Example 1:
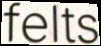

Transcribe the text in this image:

felts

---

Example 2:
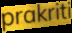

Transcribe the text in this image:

prakriti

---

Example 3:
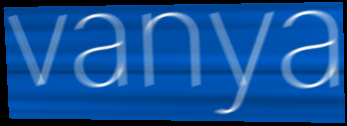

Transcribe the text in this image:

vanya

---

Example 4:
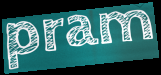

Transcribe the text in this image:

pram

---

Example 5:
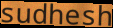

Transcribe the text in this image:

sudhesh